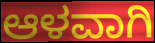
ಆಳವಾಗಿ